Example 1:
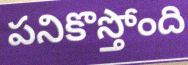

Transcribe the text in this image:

పనికొస్తోంది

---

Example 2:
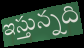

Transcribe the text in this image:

ఇస్తున్నది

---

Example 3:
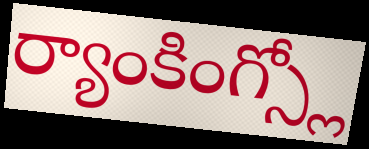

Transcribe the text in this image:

ర్యాంకింగ్స్లో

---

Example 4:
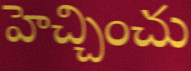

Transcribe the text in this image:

హెచ్చించు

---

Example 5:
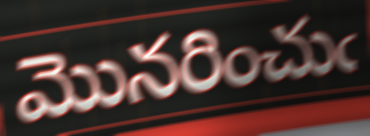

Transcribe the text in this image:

మొనరించుఁ